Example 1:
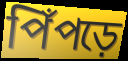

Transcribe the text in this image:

পিঁপড়ে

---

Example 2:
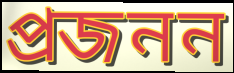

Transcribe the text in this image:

প্রজনন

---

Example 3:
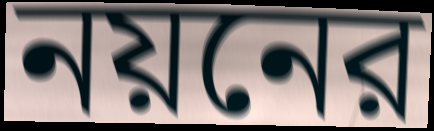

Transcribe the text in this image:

নয়নের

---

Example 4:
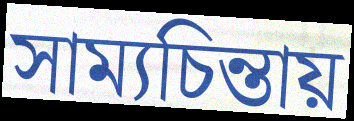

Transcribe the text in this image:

সাম্যচিন্তায়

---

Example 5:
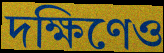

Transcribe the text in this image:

দক্ষিণেও